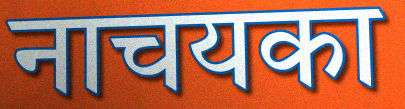
नाचयका